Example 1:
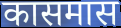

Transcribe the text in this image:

कासमास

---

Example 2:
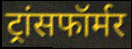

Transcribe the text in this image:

ट्रांसफॉर्मर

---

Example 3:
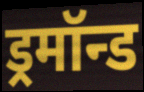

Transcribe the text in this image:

ड्रमॉन्ड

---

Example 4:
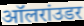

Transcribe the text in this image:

ऑलरांउडर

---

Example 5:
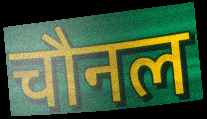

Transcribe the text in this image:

चौनल